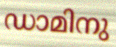
ഡാമിനു